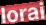
lorai